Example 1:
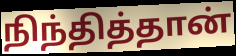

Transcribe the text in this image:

நிந்தித்தான்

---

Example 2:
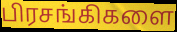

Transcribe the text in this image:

பிரசங்கிகளை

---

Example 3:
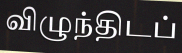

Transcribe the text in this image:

விழுந்திடப்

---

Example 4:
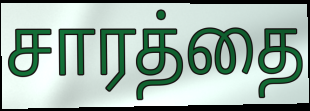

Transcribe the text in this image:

சாரத்தை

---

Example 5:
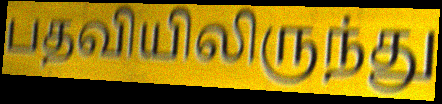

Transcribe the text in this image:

பதவியிலிருந்து